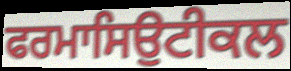
ਫਰਮਾਸਿਉਟੀਕਲ